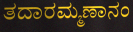
ತದಾರಮ್ಮಣಾನಂ